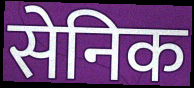
सेनिक